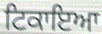
ਟਿਕਾਇਆ